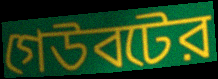
গেউবটের